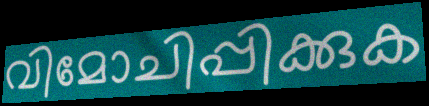
വിമോചിപ്പിക്കുക